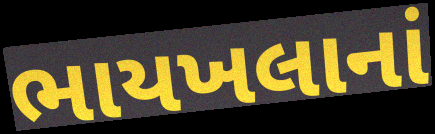
ભાયખલાનાં